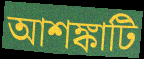
আশঙ্কাটি